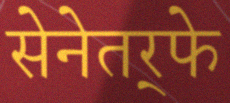
सेनेतर्फे